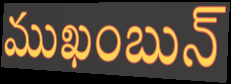
ముఖంబున్